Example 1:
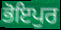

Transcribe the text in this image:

ਭੋਇਪੁਰ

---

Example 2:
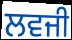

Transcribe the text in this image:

ਲਵਜੀ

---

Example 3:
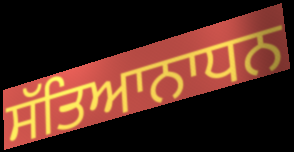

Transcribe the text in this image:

ਸੱਤਿਆਨਾਧਨ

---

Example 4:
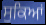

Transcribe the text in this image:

ਸੁਕਿਆਂ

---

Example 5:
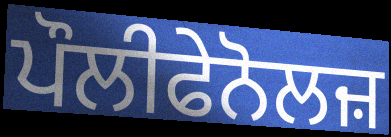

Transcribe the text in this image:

ਪੌਲੀਫੇਨੋਲਜ਼